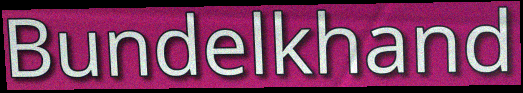
Bundelkhand